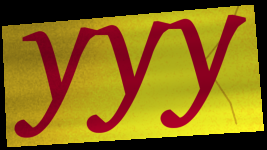
yyy